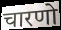
चारणो